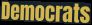
Democrats